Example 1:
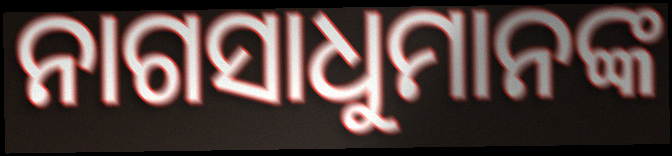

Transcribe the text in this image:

ନାଗସାଧୁମାନଙ୍କ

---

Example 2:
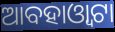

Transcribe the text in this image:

ଆବହାଓ୍ୱାଟା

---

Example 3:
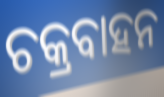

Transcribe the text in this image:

ଚକ୍ରବାହନ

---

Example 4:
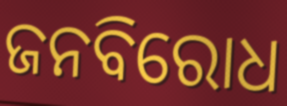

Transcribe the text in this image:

ଜନବିରୋଧ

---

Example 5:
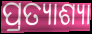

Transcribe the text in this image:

ପ୍ରତ୍ୟାଶ୍ୟା